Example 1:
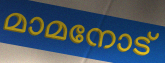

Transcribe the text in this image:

മാമനോട്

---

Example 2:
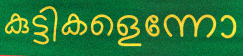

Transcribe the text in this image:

കുട്ടികളെന്നോ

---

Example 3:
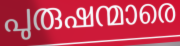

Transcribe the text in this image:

പുരുഷന്മാരെ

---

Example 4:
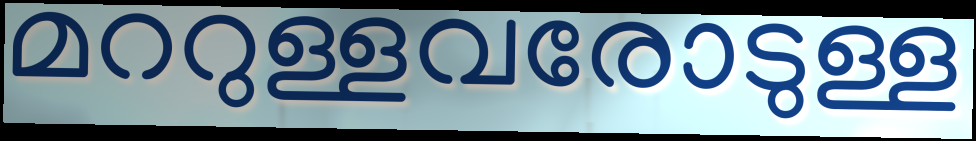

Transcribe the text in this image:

മററുള്ളവരോടുള്ള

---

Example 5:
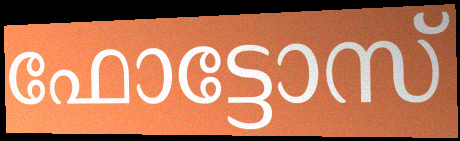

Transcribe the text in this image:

ഫോട്ടോസ്